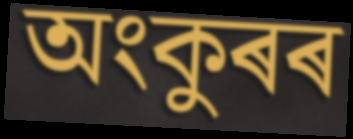
অংকুৰৰ